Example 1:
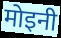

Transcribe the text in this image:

मोइनी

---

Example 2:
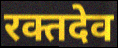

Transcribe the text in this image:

रक्तदेव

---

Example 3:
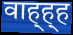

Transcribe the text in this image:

वाह्ह्ह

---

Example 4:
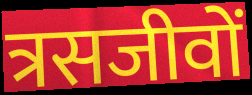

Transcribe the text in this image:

त्रसजीवों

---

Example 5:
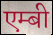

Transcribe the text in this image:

एम्बी